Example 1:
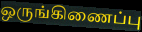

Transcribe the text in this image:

ஒருங்கிணைப்பு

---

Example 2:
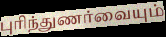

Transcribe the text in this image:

புரிந்துணர்வையும்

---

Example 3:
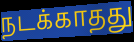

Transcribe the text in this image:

நடக்காதது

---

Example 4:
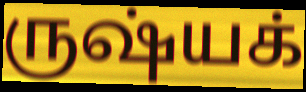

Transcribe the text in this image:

ருஷ்யக்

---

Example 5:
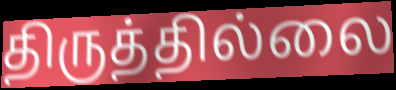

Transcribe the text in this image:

திருத்தில்லை